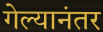
गेल्यानंतर